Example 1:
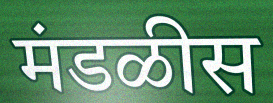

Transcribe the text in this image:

मंडळीस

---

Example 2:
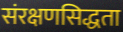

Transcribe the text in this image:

संरक्षणसिद्धता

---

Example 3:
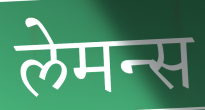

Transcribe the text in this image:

लेमन्स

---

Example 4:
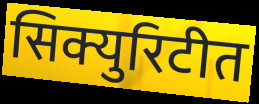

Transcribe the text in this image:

सिक्युरिटीत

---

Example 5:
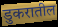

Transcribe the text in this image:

डुकरातील